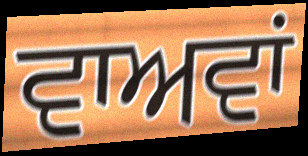
ਵਾਅਵਾਂ